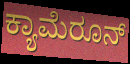
ಕ್ಯಾಮೆರೂನ್